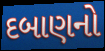
દબાણનો